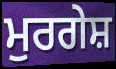
ਮੁਰਗੇਸ਼